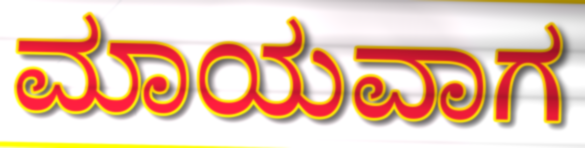
ಮಾಯವಾಗ